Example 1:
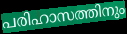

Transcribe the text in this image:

പരിഹാസത്തിനും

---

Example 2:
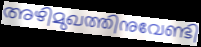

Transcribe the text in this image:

അഴിമുഖത്തിനുവേണ്ടി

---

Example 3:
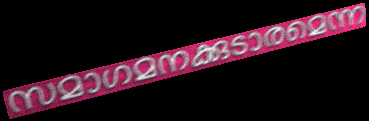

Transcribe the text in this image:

സമാഗമനക്കുടാരമെന്ന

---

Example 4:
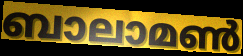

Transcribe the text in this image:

ബാലാമൺ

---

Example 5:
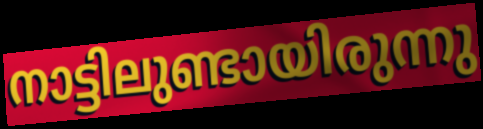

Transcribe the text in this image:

നാട്ടിലുണ്ടായിരുന്നു